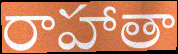
రాహాతా